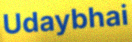
Udaybhai